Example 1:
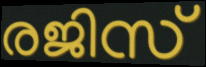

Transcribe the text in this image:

രജിസ്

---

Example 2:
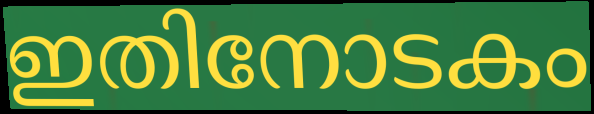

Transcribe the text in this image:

ഇതിനോടകം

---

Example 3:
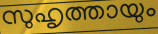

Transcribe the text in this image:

സുഹൃത്തായും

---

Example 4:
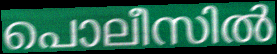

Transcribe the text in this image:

പൊലീസിൽ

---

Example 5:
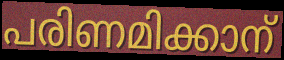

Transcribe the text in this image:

പരിണമിക്കാന്